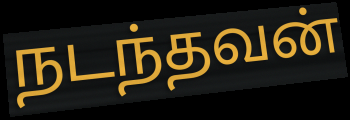
நடந்தவன்